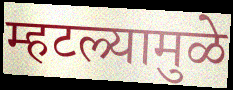
म्हटल्यामुळे